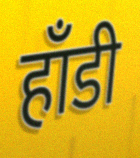
हाँडी